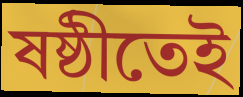
ষষ্ঠীতেই